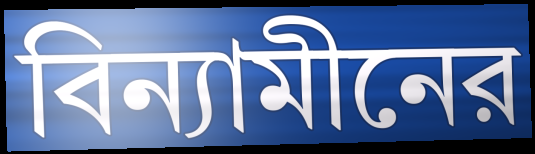
বিন্যামীনের